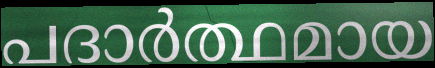
പദാർത്ഥമായ